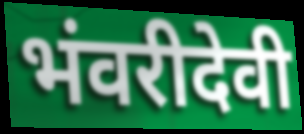
भंवरीदेवी